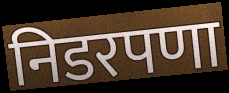
निडरपणा